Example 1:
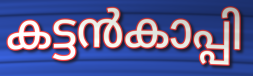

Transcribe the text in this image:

കട്ടൻകാപ്പി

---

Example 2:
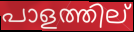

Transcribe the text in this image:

പാളത്തില്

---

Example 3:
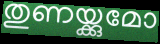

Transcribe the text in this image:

തുണയ്ക്കുമോ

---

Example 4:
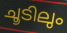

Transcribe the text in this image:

ചൂടിലും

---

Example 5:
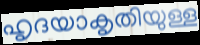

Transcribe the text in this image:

ഹൃദയാകൃതിയുള്ള